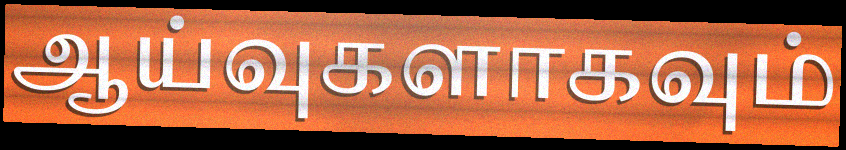
ஆய்வுகளாகவும்